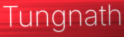
Tungnath